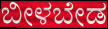
ಬೀಳಬೇಡ